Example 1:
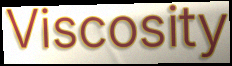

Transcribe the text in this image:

Viscosity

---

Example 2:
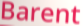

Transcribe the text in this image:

Barent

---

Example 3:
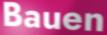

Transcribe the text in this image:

Bauen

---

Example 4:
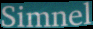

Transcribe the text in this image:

Simnel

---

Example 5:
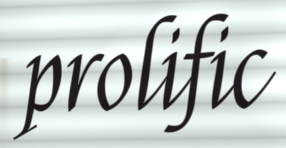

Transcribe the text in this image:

prolific